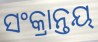
ସଂକ୍ରାନ୍ତୟ